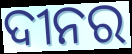
ଦୀନର